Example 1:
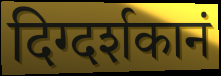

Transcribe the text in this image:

दिग्दर्शकानं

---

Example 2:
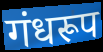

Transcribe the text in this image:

गंधरूप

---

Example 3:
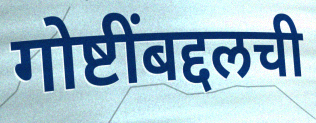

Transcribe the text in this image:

गोष्टींबद्दलची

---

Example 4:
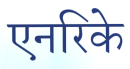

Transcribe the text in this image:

एनरिके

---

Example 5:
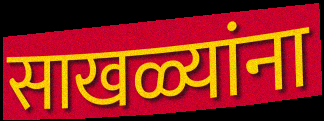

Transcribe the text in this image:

साखळ्यांना